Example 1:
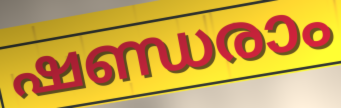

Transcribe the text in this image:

ഷണ്ഡരാം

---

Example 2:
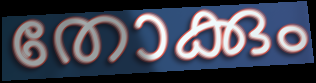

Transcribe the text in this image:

തോക്കും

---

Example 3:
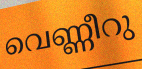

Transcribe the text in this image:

വെണ്ണീറു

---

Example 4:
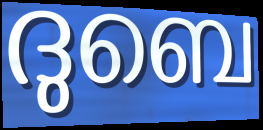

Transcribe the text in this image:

ദുബെ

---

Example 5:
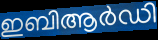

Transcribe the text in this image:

ഇബിആർഡി